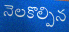
నెలకొల్పిన